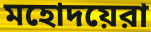
মহোদয়েরা